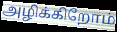
அழிக்கிறோம்